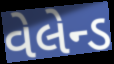
વેલેન્ડ